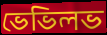
ভেভিলভ